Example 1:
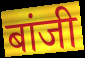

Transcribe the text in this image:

बांजी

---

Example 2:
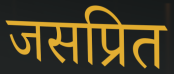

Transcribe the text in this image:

जसप्रित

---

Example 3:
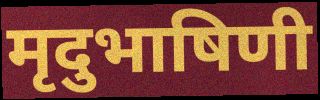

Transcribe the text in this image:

मृदुभाषिणी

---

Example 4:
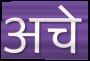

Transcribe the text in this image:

अचे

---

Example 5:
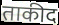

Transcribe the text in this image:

ताकीद